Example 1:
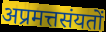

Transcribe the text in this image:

अप्रमत्तसंयतों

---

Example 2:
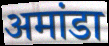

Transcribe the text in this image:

अमांडा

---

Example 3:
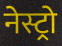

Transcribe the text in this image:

नेस्ट्रो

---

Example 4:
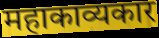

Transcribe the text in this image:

महाकाव्यकार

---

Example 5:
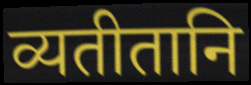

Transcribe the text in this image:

व्यतीतानि